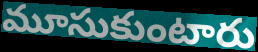
మూసుకుంటారు